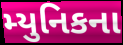
મ્યુનિકના